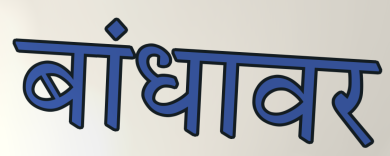
बांधावर